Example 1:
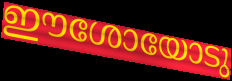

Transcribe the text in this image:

ഈശോയോടു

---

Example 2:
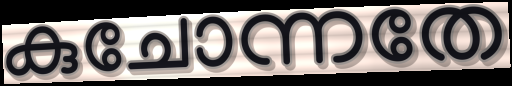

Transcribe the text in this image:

കുചോന്നതേ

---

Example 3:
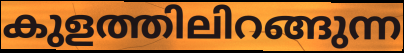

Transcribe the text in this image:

കുളത്തിലിറങ്ങുന്ന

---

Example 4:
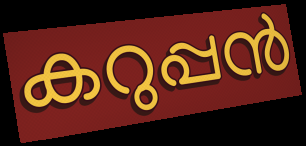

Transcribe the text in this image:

കറുപ്പൻ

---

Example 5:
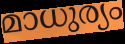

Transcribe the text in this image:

മാധുര്യം